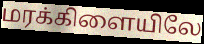
மரக்கிளையிலே